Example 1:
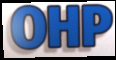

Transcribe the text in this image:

OHP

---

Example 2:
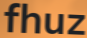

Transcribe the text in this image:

fhuz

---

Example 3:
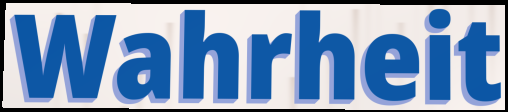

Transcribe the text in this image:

Wahrheit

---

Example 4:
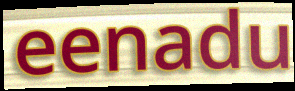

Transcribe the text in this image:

eenadu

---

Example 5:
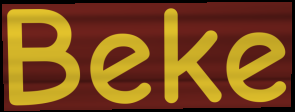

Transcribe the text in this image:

Beke